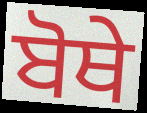
ਬੋਥੇ